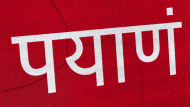
पयाणं